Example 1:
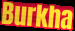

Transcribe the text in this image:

Burkha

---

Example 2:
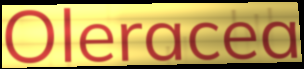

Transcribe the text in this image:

Oleracea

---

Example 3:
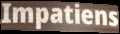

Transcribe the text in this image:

Impatiens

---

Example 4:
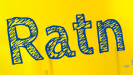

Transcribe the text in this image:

Ratn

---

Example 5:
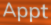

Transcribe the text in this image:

Appt